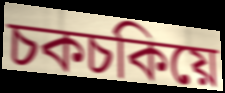
চকচকিয়ে